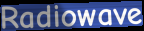
Radiowave